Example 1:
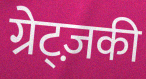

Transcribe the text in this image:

ग्रेट्ज़की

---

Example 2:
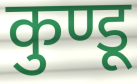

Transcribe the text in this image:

कुण्डू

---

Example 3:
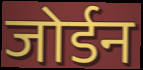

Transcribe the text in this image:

जोर्डन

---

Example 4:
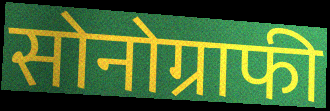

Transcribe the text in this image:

सोनोग्राफी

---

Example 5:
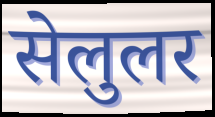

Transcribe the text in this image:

सेलुलर